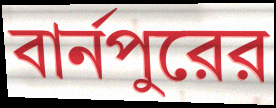
বার্নপুরের